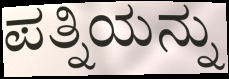
ಪತ್ನಿಯನ್ನು